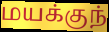
மயக்குந்